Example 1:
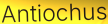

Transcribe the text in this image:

Antiochus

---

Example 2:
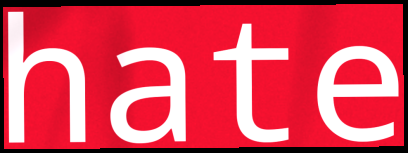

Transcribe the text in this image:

hate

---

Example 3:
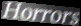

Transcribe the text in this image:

Horrors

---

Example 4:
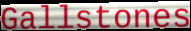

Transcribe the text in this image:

Gallstones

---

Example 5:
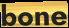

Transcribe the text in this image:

bone